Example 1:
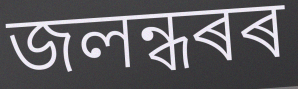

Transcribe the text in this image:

জলন্ধৰৰ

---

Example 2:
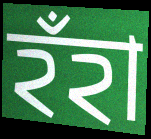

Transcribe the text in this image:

হঁহা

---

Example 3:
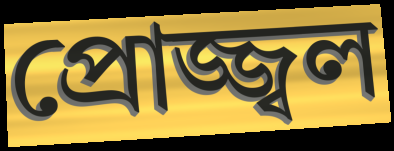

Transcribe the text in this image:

প্ৰোজ্জ্বল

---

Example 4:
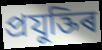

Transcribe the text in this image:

প্ৰযুক্তিৰ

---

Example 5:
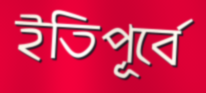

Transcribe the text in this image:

ইতিপূৰ্বে